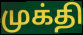
முக்தி